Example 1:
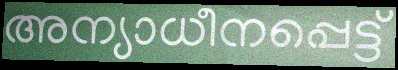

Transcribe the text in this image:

അന്യാധീനപ്പെട്ട്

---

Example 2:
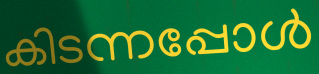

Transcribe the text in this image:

കിടന്നപ്പോൾ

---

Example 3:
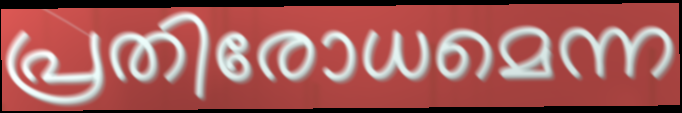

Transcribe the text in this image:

പ്രതിരോധമെന്ന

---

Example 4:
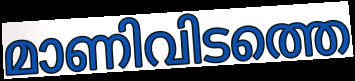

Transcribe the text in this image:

മാണിവിടത്തെ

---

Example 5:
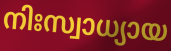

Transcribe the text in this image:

നിഃസ്വാധ്യായ